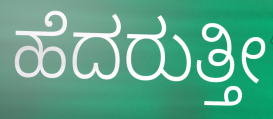
ಹೆದರುತ್ತೀ